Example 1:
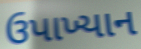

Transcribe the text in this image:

ઉપાખ્યાન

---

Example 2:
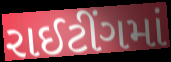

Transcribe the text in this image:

રાઈટીંગમાં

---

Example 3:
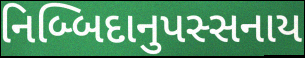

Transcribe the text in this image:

નિબ્બિદાનુપસ્સનાય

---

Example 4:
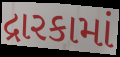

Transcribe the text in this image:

દ્રારકામાં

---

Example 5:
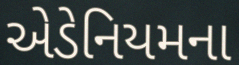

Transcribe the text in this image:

એડેનિયમના